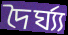
দৈৰ্ঘ্য্য